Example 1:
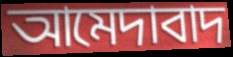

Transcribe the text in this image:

আমেদাবাদ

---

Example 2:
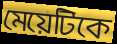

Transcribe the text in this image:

মেয়েটিকে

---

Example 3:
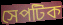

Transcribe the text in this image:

সেপটিক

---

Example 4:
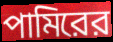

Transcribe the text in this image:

পামিরের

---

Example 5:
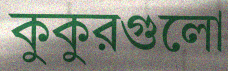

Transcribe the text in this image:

কুকুরগুলো